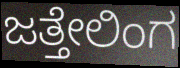
ಜತ್ತೇಲಿಂಗ